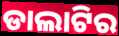
ଡାଲାଟିର